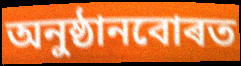
অনুষ্ঠানবোৰত